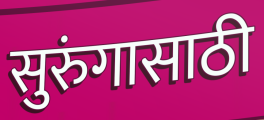
सुरुंगासाठी